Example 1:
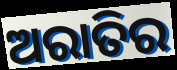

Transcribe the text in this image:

ଅରାତିର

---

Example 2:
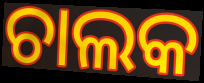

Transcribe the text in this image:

ଚାଲକ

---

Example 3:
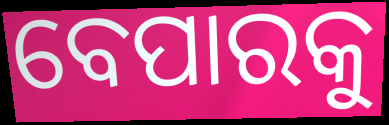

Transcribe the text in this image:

ବେପାରକୁ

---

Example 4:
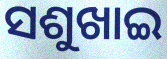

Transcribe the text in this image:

ସଶୁଖାଇ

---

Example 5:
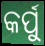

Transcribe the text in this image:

କର୍ପୁ